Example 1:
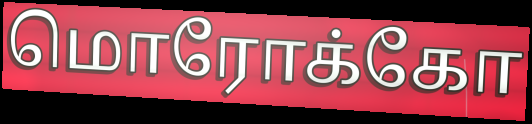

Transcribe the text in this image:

மொரோக்கோ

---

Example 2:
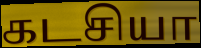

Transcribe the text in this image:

கடசியா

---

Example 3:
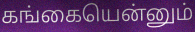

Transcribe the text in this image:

கங்கையென்னும்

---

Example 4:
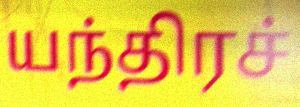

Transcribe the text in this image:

யந்திரச்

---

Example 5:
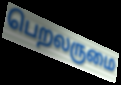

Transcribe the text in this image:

பெறலருமை